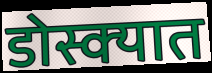
डोस्क्यात